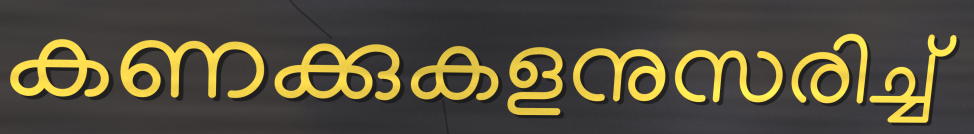
കണക്കുകളനുസരിച്ച്